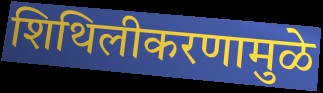
शिथिलीकरणामुळे